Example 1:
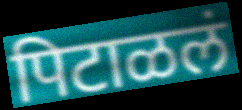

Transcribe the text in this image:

पिटाळलं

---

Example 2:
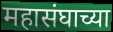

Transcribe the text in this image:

महासंघाच्या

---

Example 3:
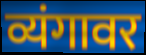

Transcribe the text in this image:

व्यंगावर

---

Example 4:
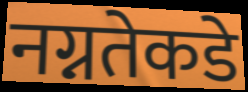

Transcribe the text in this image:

नग्नतेकडे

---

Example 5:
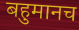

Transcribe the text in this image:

बहुमानच